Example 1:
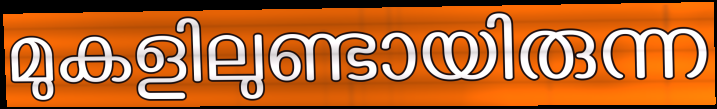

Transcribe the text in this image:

മുകളിലുണ്ടായിരുന്ന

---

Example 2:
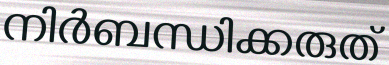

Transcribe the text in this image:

നിർബന്ധിക്കരുത്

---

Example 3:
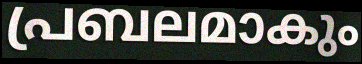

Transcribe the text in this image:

പ്രബലമാകും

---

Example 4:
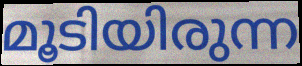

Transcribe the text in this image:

മൂടിയിരുന്ന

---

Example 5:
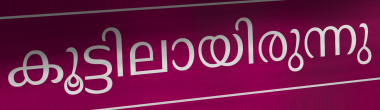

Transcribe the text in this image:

കൂട്ടിലായിരുന്നു